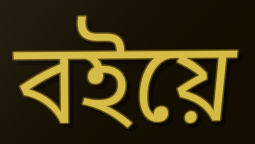
বইয়ে